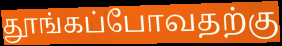
தூங்கப்போவதற்கு